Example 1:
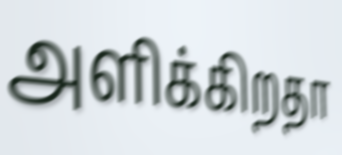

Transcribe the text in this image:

அளிக்கிறதா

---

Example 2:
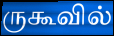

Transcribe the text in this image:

ருகூவில்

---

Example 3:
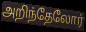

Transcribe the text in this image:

அறிந்தேலோர்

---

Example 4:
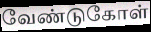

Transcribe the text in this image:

வேண்டுகோள்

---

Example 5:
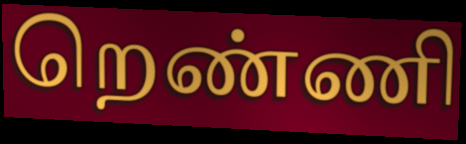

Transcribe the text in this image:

றெண்ணி